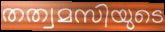
തത്വമസിയുടെ